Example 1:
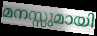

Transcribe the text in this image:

മനസ്സുമായി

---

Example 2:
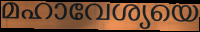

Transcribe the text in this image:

മഹാവേശ്യയെ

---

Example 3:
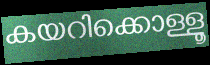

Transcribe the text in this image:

കയറിക്കൊള്ളൂ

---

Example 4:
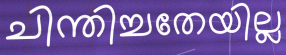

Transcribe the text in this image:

ചിന്തിച്ചതേയില്ല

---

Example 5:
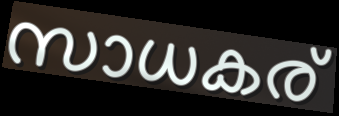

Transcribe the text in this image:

സാധകര്